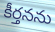
కీర్తనను